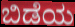
ಬಿಡೆಯ